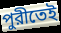
পুরীতেই